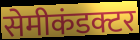
सेमीकंडक्टर